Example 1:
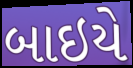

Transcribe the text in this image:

બાઇયે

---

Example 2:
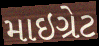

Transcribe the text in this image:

માઇગ્રેટ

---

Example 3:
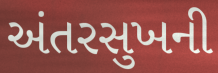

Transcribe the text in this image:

અંતરસુખની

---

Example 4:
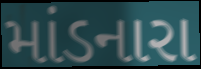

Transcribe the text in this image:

માંડનારા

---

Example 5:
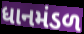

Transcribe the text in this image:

ધાનમંડળ